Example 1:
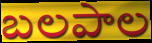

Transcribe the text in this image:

బలపాల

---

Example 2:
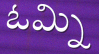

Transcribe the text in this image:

ఓమ్ని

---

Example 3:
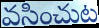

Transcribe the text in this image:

వసించుట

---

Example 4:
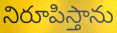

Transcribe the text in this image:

నిరూపిస్తాను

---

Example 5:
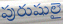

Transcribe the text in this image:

పురుషులై